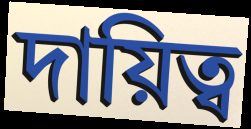
দায়িত্ব